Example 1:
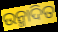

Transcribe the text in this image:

ଉନ୍ମାଦିତ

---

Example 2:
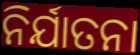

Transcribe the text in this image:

ନିର୍ଯାତନା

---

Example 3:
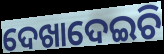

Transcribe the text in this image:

ଦେଖାଦେଇଚି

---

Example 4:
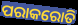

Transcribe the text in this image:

ପରାକରୋତି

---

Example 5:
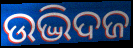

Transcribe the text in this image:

ଉଦ୍ଭିଦଜ